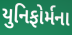
યુનિફોર્મના